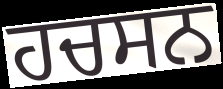
ਹਚਸਨ